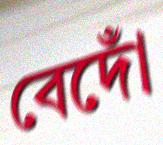
বেদোঁ